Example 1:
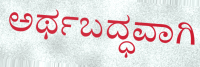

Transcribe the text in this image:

ಅರ್ಥಬದ್ಧವಾಗಿ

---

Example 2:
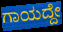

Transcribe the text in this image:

ಗಾಯದ್ದೇ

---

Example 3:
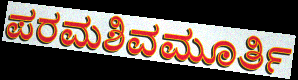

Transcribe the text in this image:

ಪರಮಶಿವಮೂರ್ತಿ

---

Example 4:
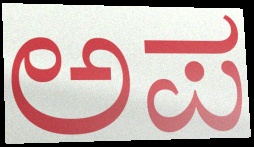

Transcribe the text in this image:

ಅಪ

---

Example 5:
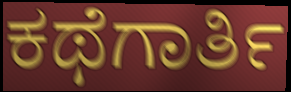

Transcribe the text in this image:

ಕಥೆಗಾರ್ತಿ